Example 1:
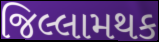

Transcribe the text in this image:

જિલ્લામથક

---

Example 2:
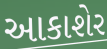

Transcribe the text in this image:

આકાશેર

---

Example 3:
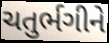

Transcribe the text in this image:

ચતુર્ભગીને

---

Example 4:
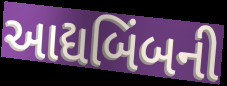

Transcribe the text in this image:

આદ્યબિંબની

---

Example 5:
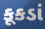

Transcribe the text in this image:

કૂકડાં